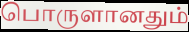
பொருளானதும்